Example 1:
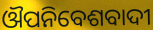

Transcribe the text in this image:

ଔପନିବେଶବାଦୀ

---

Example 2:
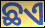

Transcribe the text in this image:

ଛଏ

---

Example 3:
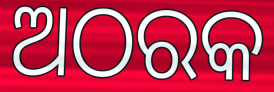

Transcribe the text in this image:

ଅଠରକ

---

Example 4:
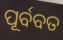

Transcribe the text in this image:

ପୂର୍ବବତ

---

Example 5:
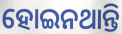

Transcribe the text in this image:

ହୋଇନଥାନ୍ତି